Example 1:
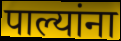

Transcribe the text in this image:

पाल्यांना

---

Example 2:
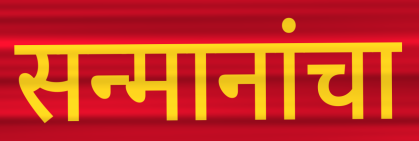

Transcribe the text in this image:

सन्मानांचा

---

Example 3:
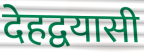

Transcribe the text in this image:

देहद्वयासी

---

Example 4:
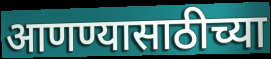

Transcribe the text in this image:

आणण्यासाठीच्या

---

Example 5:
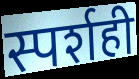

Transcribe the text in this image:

स्पर्शही